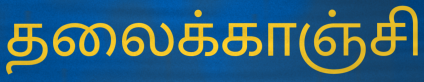
தலைக்காஞ்சி